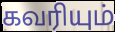
கவரியும்